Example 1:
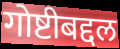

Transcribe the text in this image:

गोष्टीबद्दल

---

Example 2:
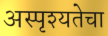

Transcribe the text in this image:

अस्पृश्यतेचा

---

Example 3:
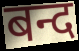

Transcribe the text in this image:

बन्द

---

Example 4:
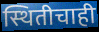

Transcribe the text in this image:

स्थितीचाही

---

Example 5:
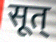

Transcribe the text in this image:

सूत्